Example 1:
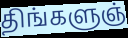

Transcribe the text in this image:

திங்களுஞ்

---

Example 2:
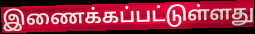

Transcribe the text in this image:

இணைக்கப்பட்டுள்ளது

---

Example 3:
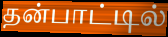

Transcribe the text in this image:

தன்பாட்டில்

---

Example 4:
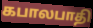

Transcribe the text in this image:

கபாலபாதி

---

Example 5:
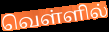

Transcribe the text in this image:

வெள்ளில்